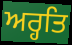
ਅਰ੍ਹਤਿ